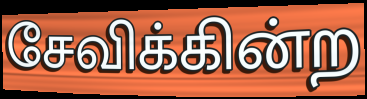
சேவிக்கின்ற